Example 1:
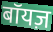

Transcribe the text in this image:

बॉयज़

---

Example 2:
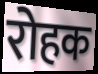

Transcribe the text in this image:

रोहक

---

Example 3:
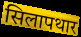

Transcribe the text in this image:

सिलापथार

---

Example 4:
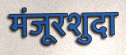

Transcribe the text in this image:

मंजूरशुदा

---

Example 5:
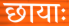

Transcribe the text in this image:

छायाः